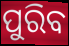
ପୁରିବ